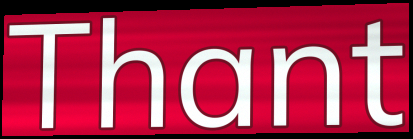
Thant